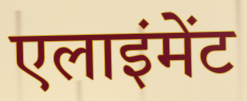
एलाइंमेंट